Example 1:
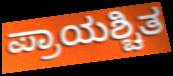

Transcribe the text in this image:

ಪ್ರಾಯಶ್ಚಿತ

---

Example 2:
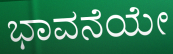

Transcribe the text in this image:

ಭಾವನೆಯೇ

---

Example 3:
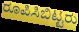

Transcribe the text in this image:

ರೂಪಿಸಿಬಿಟ್ಟರು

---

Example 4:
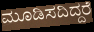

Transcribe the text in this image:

ಮೂಡಿಸದಿದ್ದರೆ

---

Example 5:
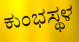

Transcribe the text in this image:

ಕುಂಭಸ್ಥಳ